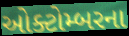
ઓક્ટોમ્બરના